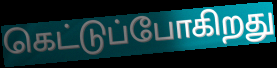
கெட்டுப்போகிறது